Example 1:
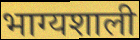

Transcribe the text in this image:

भाग्यशाली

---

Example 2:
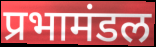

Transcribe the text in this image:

प्रभामंडल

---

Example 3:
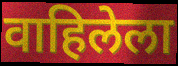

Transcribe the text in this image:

वाहिलेला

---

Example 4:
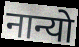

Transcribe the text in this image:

नान्यो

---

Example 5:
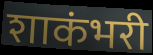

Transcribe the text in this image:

शाकंभरी